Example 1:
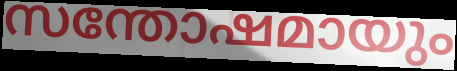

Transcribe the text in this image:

സന്തോഷമായും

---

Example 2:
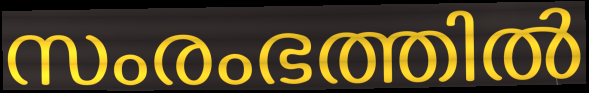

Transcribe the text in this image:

സംരംഭത്തിൽ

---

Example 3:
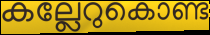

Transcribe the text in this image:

കല്ലേറുകൊണ്ട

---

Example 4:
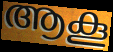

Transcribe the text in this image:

ആകൂ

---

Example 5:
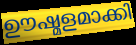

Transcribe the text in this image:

ഊഷ്മളമാക്കി